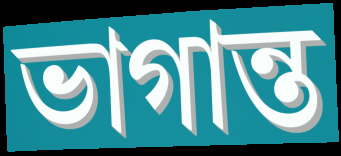
ভাগান্ত